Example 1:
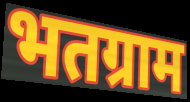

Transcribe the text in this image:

भतग्राम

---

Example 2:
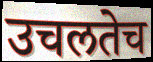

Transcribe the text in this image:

उचलतेच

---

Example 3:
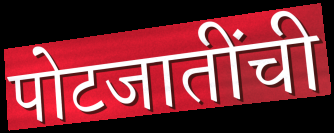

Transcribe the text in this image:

पोटजातींची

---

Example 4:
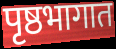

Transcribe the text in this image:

पृष्ठभागात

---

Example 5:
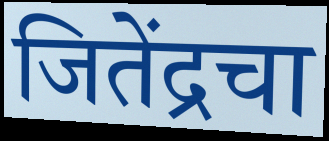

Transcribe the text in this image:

जितेंद्रचा